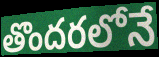
తొందరలోనే